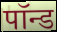
पॉन्ड